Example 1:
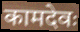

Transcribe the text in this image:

कामदेवः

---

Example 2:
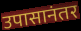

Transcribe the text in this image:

उपासानंतर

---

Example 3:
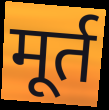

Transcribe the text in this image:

मूर्त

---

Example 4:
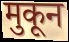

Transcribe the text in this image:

मुकून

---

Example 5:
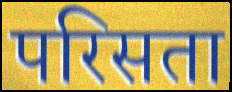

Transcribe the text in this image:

परिसता